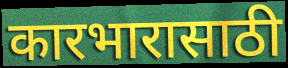
कारभारासाठी